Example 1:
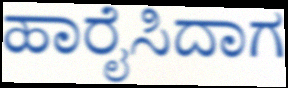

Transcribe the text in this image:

ಹಾರೈಸಿದಾಗ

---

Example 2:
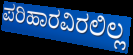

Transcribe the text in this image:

ಪರಿಹಾರವಿರಲಿಲ್ಲ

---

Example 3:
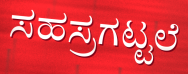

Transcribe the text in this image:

ಸಹಸ್ರಗಟ್ಟಲೆ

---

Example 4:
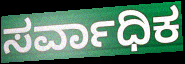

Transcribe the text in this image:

ಸರ್ವಾಧಿಕ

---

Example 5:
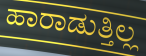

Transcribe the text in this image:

ಹಾರಾಡುತ್ತಿಲ್ಲ